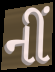
નીં